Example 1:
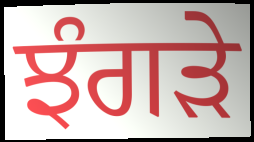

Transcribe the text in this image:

ਝੰਗੜੇ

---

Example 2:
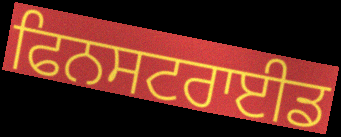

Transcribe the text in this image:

ਫਿਨਸਟਰਾਈਡ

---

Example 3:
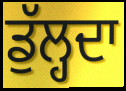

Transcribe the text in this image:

ਡੁੱਲ੍ਹਦਾ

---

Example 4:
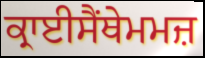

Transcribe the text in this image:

ਕ੍ਰਾਈਸੈਂਥੇਮਮਜ਼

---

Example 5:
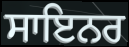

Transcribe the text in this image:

ਸਾਇਨਰ